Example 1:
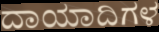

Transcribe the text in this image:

ದಾಯಾದಿಗಳ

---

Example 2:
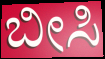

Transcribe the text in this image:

ಬೀಸಿ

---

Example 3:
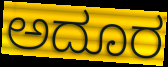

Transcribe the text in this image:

ಅದೂರ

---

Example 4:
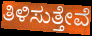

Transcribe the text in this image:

ತಿಳಿಸುತ್ತೇವೆ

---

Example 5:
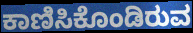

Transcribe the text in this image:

ಕಾಣಿಸಿಕೊಂಡಿರುವ